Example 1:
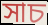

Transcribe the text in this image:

সাচ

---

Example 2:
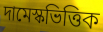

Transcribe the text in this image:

দামেস্কভিত্তিক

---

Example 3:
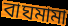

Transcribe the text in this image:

বাঘমামা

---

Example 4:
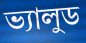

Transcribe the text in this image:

ভ্যালুড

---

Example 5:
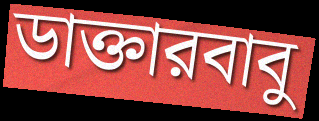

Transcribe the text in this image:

ডাক্তারবাবু